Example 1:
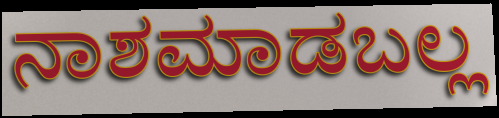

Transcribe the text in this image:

ನಾಶಮಾಡಬಲ್ಲ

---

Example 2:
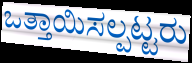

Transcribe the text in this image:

ಒತ್ತಾಯಿಸಲ್ಪಟ್ಟರು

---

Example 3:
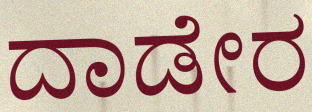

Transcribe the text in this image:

ದಾಡೇರ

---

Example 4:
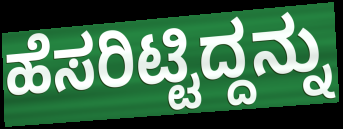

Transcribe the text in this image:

ಹೆಸರಿಟ್ಟಿದ್ದನ್ನು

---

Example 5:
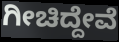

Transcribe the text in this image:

ಗೀಚಿದ್ದೇವೆ